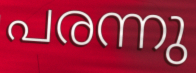
പരന്നു